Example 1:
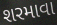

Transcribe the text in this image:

શરમાવા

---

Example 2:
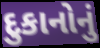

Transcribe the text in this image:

દુકાનોનું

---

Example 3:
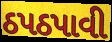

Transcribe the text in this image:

ઠપઠપાવી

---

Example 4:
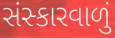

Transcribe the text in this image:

સંસ્કારવાળું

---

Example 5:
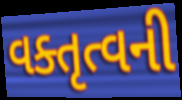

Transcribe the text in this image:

વક્તૃત્વની